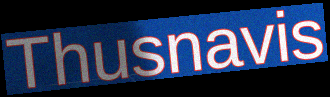
Thusnavis